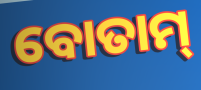
ବୋତାମ୍